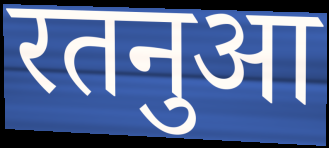
रतनुआ